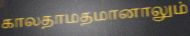
காலதாமதமானாலும்